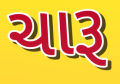
ચારૂ